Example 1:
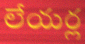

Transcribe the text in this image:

లేయర్ల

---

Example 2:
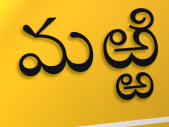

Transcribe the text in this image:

మఱ్ఱి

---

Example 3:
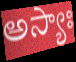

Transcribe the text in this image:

అస్యాః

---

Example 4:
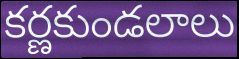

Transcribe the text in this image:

కర్ణకుండలాలు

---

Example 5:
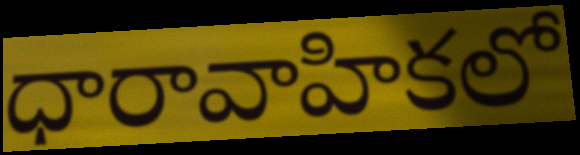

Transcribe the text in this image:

ధారావాహికలో